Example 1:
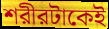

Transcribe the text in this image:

শরীরটাকেই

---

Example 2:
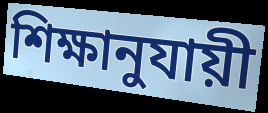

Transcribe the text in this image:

শিক্ষানুযায়ী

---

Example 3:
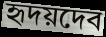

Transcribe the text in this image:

হৃদয়দেব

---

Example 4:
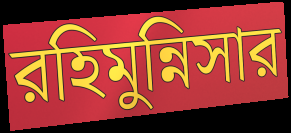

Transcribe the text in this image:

রহিমুন্নিসার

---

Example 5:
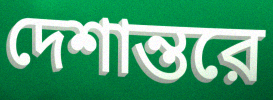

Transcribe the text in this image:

দেশান্তরে